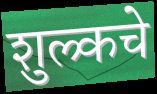
शुल्कचे